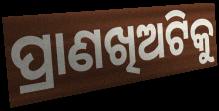
ପ୍ରାଣଖିଅଟିକୁ